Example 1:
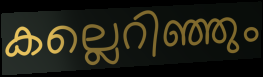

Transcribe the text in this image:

കല്ലെറിഞ്ഞും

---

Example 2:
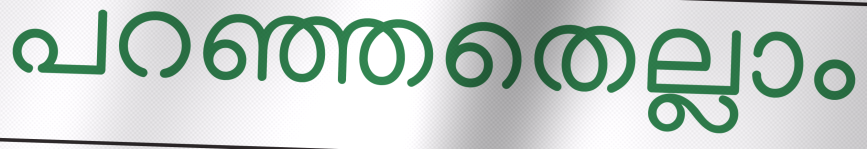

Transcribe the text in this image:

പറഞ്ഞതെല്ലാം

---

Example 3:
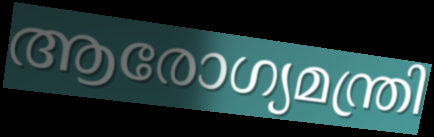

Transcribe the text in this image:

ആരോഗ്യമന്ത്രി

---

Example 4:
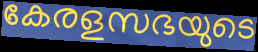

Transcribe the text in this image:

കേരളസഭയുടെ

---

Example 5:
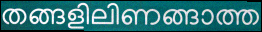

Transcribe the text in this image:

തങ്ങളിലിണങ്ങാത്ത